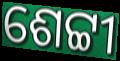
ଶେଟ୍ଟୀ